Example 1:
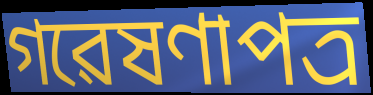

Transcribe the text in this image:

গৱেষণাপত্ৰ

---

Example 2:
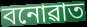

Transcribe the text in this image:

বনোৱাত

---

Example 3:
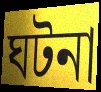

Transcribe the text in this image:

ঘটনা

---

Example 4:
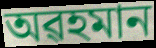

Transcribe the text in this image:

অৱহমান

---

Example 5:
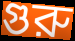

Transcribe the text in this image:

গুৰু